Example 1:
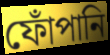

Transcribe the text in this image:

ফোঁপানি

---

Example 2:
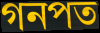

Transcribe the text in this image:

গনপত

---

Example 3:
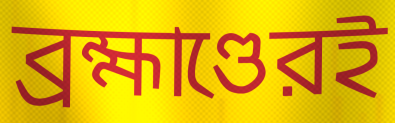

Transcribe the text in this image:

ব্রহ্মাণ্ডেরই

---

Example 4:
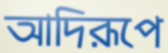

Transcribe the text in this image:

আদিরূপে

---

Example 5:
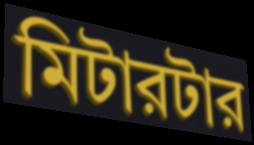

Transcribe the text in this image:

মিটারটার